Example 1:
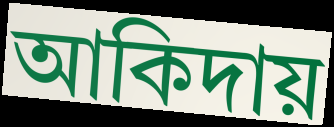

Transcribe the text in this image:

আকিদায়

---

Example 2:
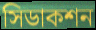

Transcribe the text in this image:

সিডাকশন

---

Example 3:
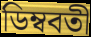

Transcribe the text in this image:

ডিম্ববতী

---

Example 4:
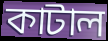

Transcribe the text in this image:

কাটাল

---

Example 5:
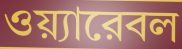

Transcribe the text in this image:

ওয়্যারেবল